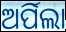
ଅର୍ପିଲା